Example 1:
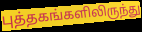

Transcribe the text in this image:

புத்தகங்களிலிருந்து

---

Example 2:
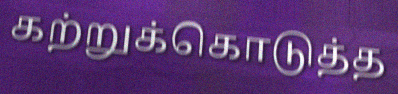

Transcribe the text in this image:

கற்றுக்கொடுத்த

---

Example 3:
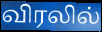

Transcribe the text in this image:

விரலில்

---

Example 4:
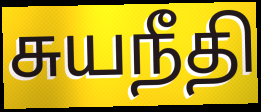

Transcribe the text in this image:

சுயநீதி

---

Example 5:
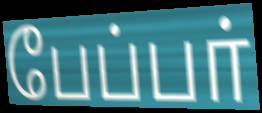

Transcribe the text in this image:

பேப்பர்